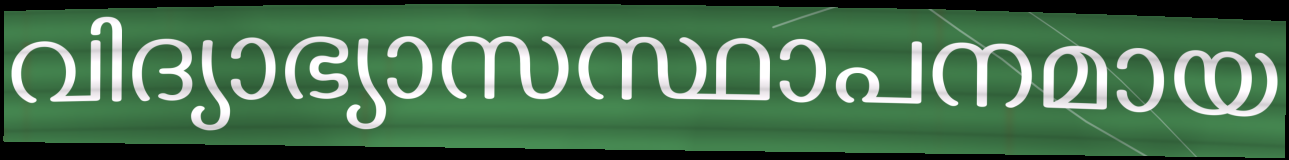
വിദ്യാഭ്യാസസ്ഥാപനമായ